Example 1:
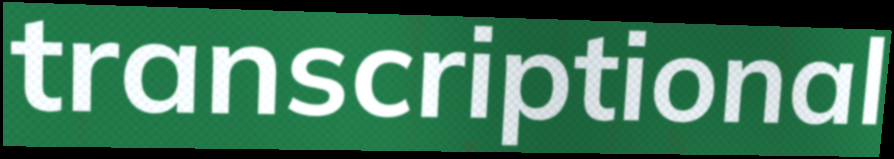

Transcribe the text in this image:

transcriptional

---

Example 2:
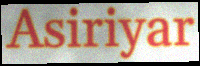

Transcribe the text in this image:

Asiriyar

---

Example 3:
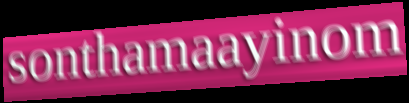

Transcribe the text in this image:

sonthamaayinom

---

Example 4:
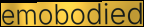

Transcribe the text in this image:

emobodied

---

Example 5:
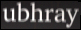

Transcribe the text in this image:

ubhray